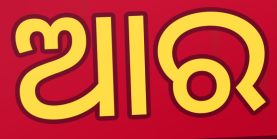
ଆର